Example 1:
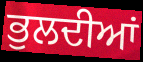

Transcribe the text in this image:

ਭੁਲਦੀਆਂ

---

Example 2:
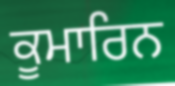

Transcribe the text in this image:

ਕੂਮਾਰਿਨ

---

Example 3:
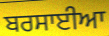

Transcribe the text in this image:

ਬਰਸਾਈਆ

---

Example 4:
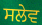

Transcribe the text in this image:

ਸਲੇਵ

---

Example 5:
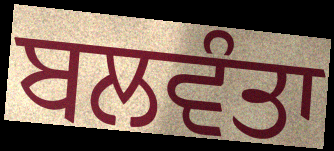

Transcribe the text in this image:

ਬਲਵੰਤਾ